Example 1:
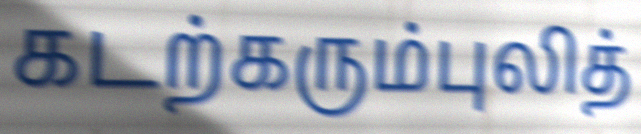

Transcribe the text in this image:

கடற்கரும்புலித்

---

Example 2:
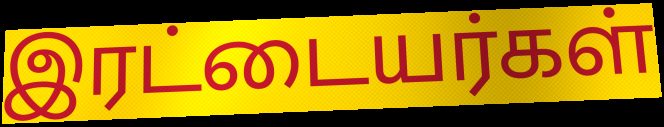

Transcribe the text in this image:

இரட்டையர்கள்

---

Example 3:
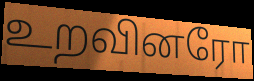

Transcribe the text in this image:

உறவினரோ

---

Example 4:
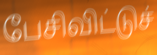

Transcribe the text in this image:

பேசிவிட்டுச்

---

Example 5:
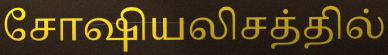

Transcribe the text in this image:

சோஷியலிசத்தில்